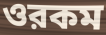
ওরকম